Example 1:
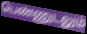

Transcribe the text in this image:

பெண்ணுடலும்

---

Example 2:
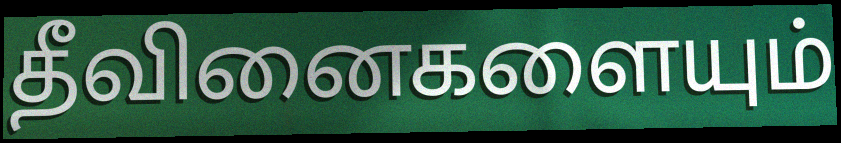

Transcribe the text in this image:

தீவினைகளையும்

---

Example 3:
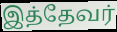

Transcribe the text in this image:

இத்தேவர்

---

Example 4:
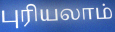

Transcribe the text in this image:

புரியலாம்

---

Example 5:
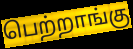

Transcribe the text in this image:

பெற்றாங்கு